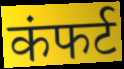
कंफर्ट